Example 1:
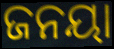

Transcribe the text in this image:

ଜନୟା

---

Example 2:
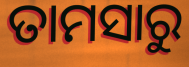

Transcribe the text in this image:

ତାମସାରୁ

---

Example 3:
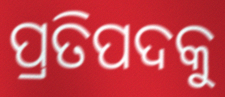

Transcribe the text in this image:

ପ୍ରତିପଦକୁ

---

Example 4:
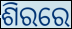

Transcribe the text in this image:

ଶିରରେ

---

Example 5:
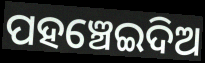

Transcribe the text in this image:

ପହଞ୍ଚେଇଦିଅ